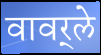
वावर्ले